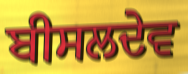
ਬੀਸਲਦੇਵ